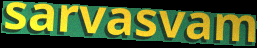
sarvasvam